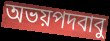
অভয়পদবাবু